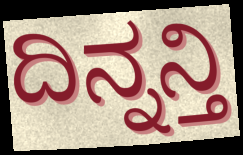
ದಿನ್ನನ್ತಿ